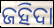
ଜହିଦା